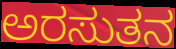
ಅರಸುತನ